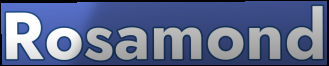
Rosamond